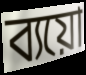
ব্যয়ো